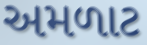
અમળાટ